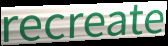
recreate